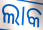
ଲାକ